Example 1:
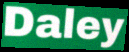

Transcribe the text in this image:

Daley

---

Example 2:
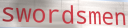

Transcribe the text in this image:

swordsmen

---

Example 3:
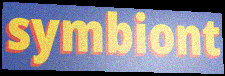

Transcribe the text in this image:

symbiont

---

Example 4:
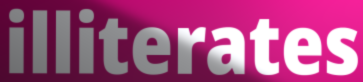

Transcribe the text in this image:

illiterates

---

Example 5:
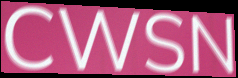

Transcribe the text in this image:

CWSN